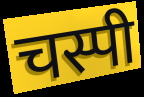
चस्पी